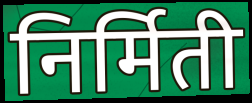
निर्मिती